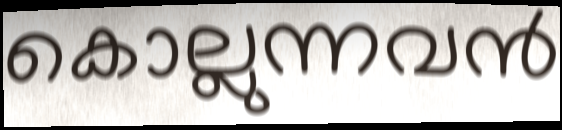
കൊല്ലുന്നവൻ